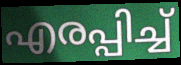
എരപ്പിച്ച്